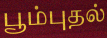
பூம்புதல்